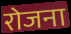
रोजना